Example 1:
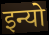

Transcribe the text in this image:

इन्यो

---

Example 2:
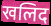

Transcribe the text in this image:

खलिद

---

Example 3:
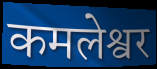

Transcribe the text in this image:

कमलेश्वर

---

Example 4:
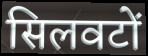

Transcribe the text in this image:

सिलवटों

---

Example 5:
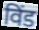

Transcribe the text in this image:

विंड